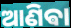
ଆଣିଵା